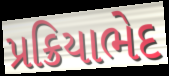
પ્રક્રિયાભેદ